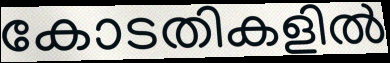
കോടതികളിൽ